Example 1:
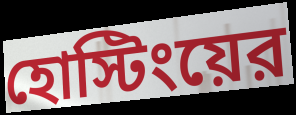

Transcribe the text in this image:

হোস্টিংয়ের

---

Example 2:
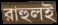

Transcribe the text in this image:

রাহুলই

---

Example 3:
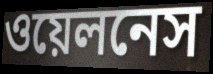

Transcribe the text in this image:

ওয়েলনেস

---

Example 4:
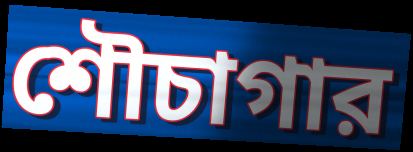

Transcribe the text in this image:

শৌচাগার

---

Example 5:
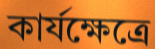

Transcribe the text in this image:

কার্যক্ষেত্রে